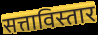
सत्ताविस्तार